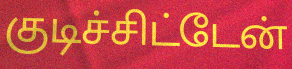
குடிச்சிட்டேன்